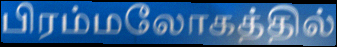
பிரம்மலோகத்தில்